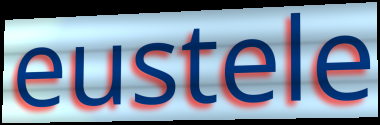
eustele